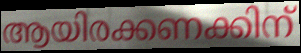
ആയിരക്കണക്കിന്